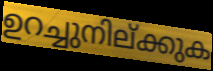
ഉറച്ചുനില്ക്കുക